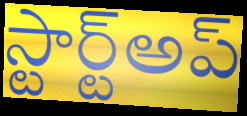
స్టార్ట్అప్